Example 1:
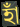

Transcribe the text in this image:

হাঁ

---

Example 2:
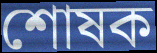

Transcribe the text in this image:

শোষক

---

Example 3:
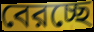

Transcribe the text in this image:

বেরচ্ছে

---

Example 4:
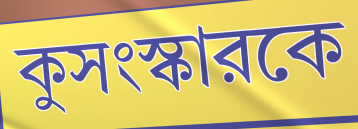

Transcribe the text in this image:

কুসংস্কারকে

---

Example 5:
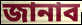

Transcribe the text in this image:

জানাব